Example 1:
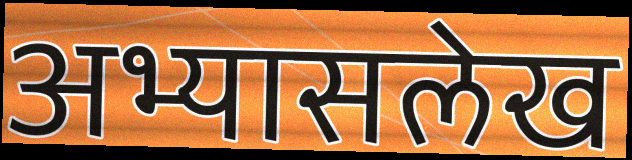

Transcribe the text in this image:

अभ्यासलेख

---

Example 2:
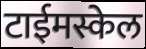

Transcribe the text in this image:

टाईमस्केल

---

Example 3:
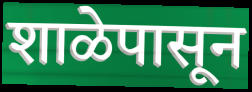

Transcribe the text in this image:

शाळेपासून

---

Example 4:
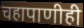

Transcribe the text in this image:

चहापाणीही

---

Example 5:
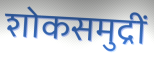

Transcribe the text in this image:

शोकसमुद्रीं